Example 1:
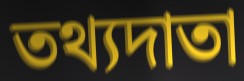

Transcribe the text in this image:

তথ্যদাতা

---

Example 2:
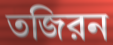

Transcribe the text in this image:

তজিরন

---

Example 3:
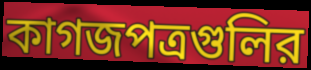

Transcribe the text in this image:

কাগজপত্রগুলির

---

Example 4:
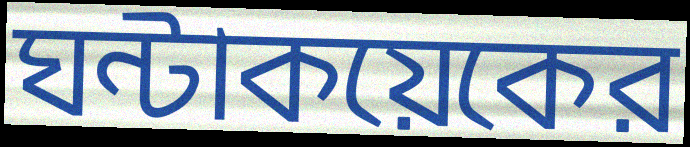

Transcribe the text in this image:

ঘন্টাকয়েকের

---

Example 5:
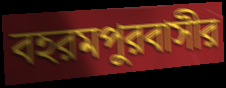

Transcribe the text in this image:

বহরমপুরবাসীর